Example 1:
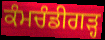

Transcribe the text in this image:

ਕੰਮਚੰਡੀਗੜ੍ਹ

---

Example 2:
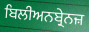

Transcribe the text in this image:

ਬਿਲੀਅਨਬ੍ਰੇਨਜ਼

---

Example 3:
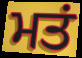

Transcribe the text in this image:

ਮਤਂ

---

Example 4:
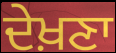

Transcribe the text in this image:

ਦੇਖ਼ਣਾ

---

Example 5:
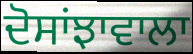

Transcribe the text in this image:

ਦੋਸਾਂਝਾਵਾਲਾ